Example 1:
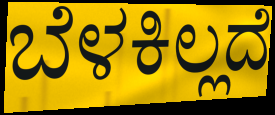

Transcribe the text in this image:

ಬೆಳಕಿಲ್ಲದೆ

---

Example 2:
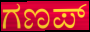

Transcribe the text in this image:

ಗಣಪ್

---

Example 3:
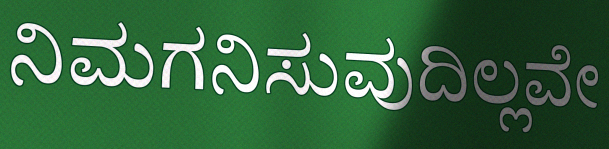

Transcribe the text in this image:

ನಿಮಗನಿಸುವುದಿಲ್ಲವೇ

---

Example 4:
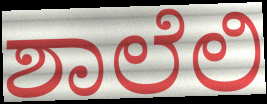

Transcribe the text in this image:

ಶಾಲೆಲಿ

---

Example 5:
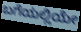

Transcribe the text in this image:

ಬಗೆಯಲ್ಲಿಯೇ